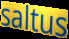
saltus